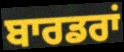
ਬਾਰਡਰਾਂ